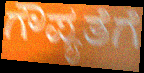
ಗೌಪ್ಯತೆಗೆ